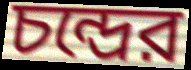
চন্দ্রের